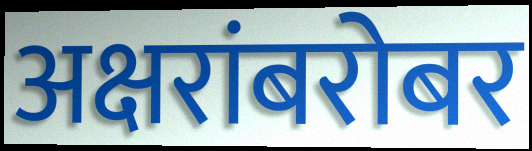
अक्षरांबरोबर